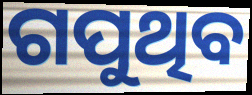
ଗପୁଥିବ